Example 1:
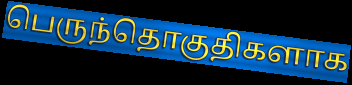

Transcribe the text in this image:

பெருந்தொகுதிகளாக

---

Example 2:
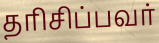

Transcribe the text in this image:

தரிசிப்பவர்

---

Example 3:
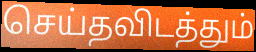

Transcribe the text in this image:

செய்தவிடத்தும்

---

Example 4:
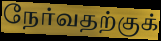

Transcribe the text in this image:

நேர்வதற்குக்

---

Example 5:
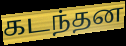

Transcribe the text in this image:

கடந்தன